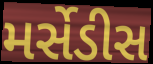
મર્સેડીસ